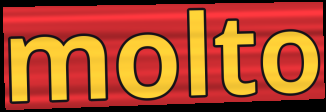
molto